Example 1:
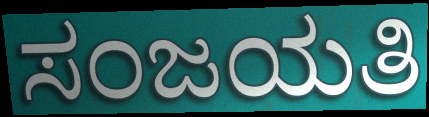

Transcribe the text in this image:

ಸಂಜಯತಿ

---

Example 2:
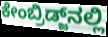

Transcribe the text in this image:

ಕೇಂಬ್ರಿಡ್ಜ್‌ನಲ್ಲಿ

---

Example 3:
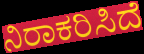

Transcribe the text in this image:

ನಿರಾಕರಿಸಿದೆ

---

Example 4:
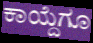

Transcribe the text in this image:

ಕಾಯ್ದೆಗೂ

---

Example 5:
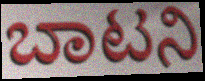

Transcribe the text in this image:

ಬಾಟನಿ